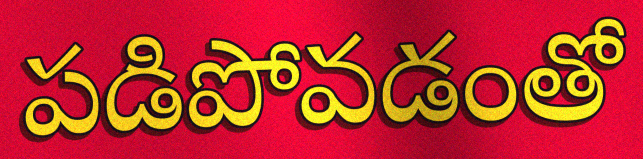
పడిపోవడంతో